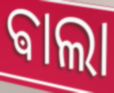
ଵାଲା